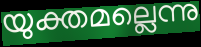
യുക്തമല്ലെന്നു